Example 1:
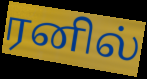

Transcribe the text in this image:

ரனில்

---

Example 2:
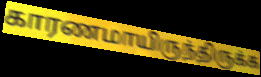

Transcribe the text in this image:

காரணமாயிருந்திருக்க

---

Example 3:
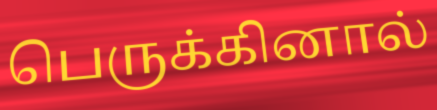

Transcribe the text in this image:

பெருக்கினால்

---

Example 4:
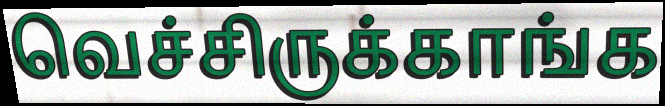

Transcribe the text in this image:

வெச்சிருக்காங்க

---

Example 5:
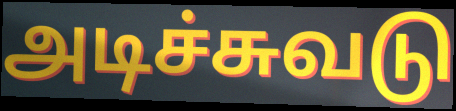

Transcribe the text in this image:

அடிச்சுவடு